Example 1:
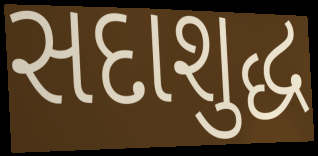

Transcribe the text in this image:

સદાશુદ્ધ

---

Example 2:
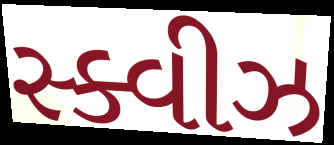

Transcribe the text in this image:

સ્ક્વીઝ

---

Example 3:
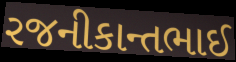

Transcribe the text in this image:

રજનીકાન્તભાઈ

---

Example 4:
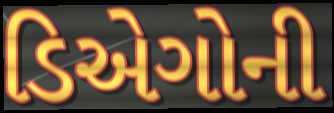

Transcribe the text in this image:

ડિએગોની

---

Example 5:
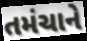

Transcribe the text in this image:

તમંચાને